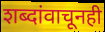
शब्दांवाचूनही